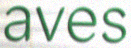
aves